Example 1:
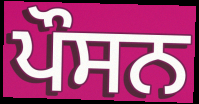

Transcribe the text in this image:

ਪੌਸਨ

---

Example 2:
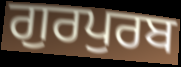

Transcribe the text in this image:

ਗੁਰਪੁਰਬ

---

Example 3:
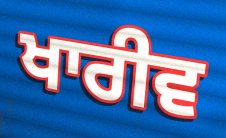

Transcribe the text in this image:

ਖਾਰੀਵ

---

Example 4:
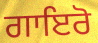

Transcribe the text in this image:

ਗਾਇਰੋ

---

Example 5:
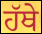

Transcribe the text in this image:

ਹੱਥੇ